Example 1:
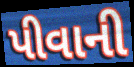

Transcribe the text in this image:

પીવાની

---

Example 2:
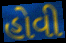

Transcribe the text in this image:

હોવી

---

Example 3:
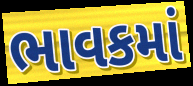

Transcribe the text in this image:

ભાવકમાં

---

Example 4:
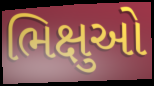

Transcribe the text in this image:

ભિક્ષુઓ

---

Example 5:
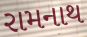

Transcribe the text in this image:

રામનાથ